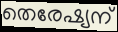
തെരേഷ്യന്